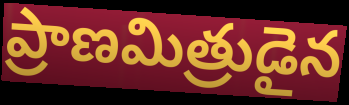
ప్రాణమిత్రుడైన